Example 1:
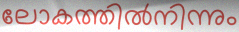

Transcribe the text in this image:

ലോകത്തിൽനിന്നും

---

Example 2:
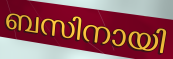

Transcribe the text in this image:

ബസിനായി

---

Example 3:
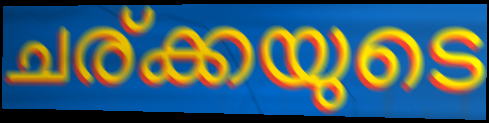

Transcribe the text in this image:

ചര്ക്കയുടെ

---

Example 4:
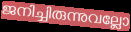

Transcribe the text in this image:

ജനിച്ചിരുന്നുവല്ലോ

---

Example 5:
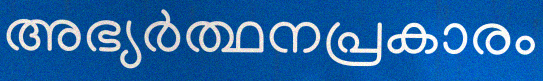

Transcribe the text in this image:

അഭ്യർത്ഥനപ്രകാരം